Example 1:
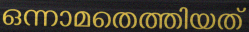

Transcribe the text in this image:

ഒന്നാമതെത്തിയത്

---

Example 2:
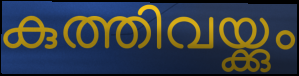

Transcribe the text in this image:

കുത്തിവയ്ക്കും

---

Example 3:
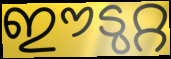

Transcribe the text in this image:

ഈടുറ്റ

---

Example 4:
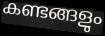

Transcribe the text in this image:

കണ്ടങ്ങളും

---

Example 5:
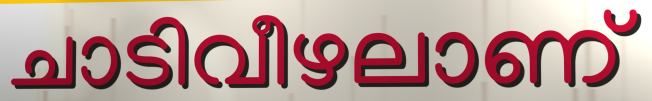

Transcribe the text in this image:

ചാടിവീഴലാണ്